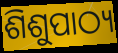
ଶିଶୁପାଠ୍ୟ